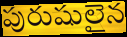
పురుషులైన